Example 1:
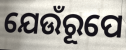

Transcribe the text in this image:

ଯେଉଁରୂପେ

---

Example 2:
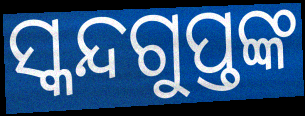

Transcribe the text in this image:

ସ୍କନ୍ଦଗୁପ୍ତଙ୍କ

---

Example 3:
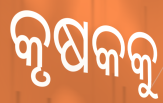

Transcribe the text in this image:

କୃଷକକୁ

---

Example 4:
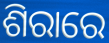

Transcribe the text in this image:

ଶିରାରେ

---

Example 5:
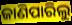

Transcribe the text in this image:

ଜାଣିପାରିଲୁ